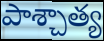
పాశ్చాత్య